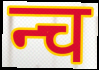
न्च